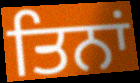
ਤਿਨਾਂ